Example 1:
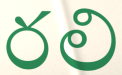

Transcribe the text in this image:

రలి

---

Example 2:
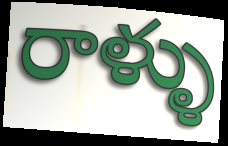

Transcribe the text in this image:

రాళ్ళు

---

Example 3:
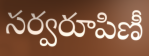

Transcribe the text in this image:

సర్వరూపిణీ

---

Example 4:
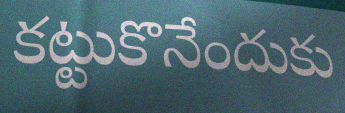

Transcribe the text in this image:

కట్టుకొనేందుకు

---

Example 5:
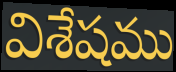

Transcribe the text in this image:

విశేషము